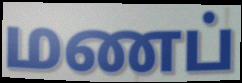
மணப்